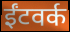
ईंटवर्क